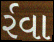
ર્રવા